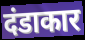
दंडाकार